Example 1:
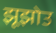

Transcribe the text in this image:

झूझोउ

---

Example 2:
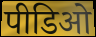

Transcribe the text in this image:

पीडिओ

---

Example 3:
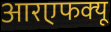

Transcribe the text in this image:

आरएफक्यू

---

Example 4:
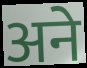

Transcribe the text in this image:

अने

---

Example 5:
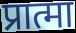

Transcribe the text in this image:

प्रात्मा